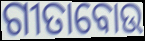
ଗୀତାବୋଉ